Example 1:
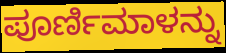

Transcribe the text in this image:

ಪೂರ್ಣಿಮಾಳನ್ನು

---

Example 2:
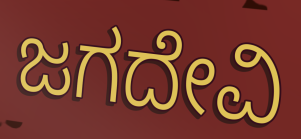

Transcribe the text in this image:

ಜಗದೇವಿ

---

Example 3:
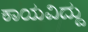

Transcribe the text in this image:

ಕಾಯವಿದ್ದು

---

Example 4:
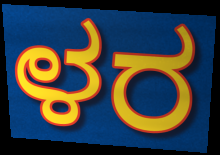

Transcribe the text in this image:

ಳರ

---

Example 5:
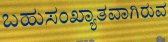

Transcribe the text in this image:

ಬಹುಸಂಖ್ಯಾತವಾಗಿರುವ